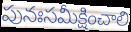
పునఃసమీక్షించాలి